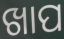
ଖାପ